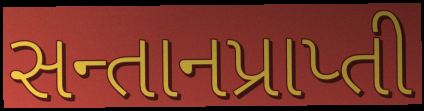
સન્તાનપ્રાપ્તી